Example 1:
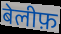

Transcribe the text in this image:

बेलीफ़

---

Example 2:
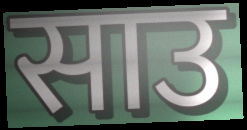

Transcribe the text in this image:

साउ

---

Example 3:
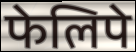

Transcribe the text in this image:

फेलिपे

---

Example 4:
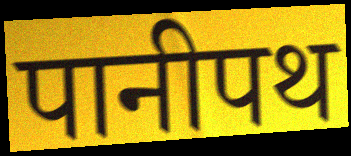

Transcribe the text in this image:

पानीपथ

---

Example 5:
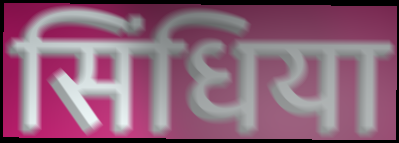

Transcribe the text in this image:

सिंधिया